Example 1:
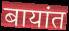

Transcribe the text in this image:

बायांत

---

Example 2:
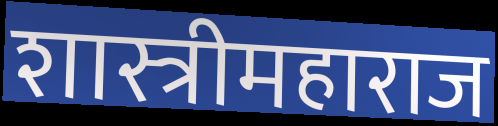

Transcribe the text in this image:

शास्त्रीमहाराज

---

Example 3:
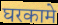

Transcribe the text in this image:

घरकामे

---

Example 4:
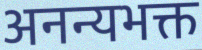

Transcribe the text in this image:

अनन्यभक्त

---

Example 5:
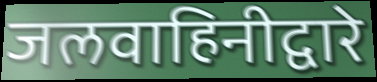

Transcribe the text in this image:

जलवाहिनीद्वारे